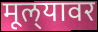
मूल्यावर